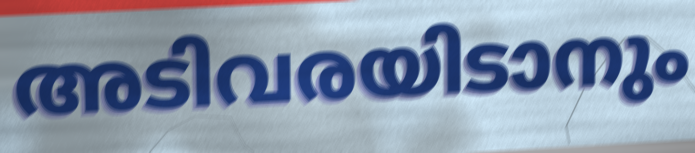
അടിവരയിടാനും